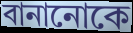
বানানোকে